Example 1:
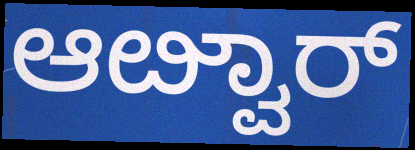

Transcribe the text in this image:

ಆೞ್ವಾರ್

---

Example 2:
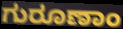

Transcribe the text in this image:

ಗುರೂಣಾಂ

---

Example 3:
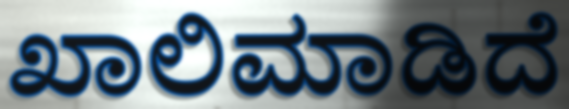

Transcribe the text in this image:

ಖಾಲಿಮಾಡಿದೆ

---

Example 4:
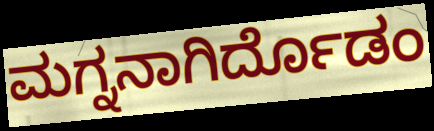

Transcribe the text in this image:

ಮಗ್ನನಾಗಿರ್ದೊಡಂ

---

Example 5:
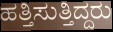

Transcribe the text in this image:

ಹತ್ತಿಸುತ್ತಿದ್ದರು